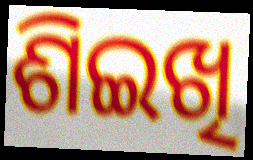
ଶିଇଖି